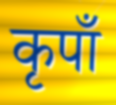
कृपाँ